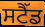
ਸਟੈੱਡ